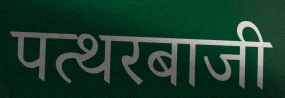
पत्थरबाजी